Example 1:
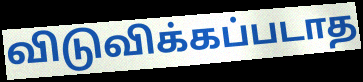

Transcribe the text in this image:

விடுவிக்கப்படாத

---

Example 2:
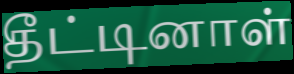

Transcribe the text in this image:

தீட்டினாள்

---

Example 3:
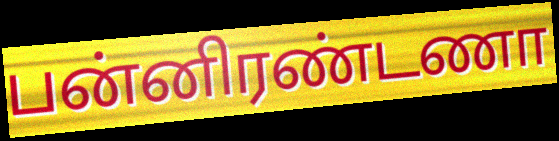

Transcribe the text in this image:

பன்னிரண்டணா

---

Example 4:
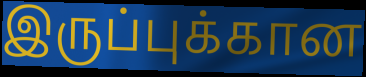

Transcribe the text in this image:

இருப்புக்கான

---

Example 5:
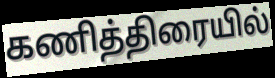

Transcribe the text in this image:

கணித்திரையில்